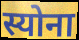
स्योना